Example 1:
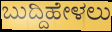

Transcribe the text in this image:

ಬುದ್ದಿಹೇಳಲು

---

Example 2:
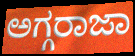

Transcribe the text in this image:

ಅಗ್ಗರಾಜಾ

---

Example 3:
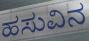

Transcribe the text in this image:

ಹಸುವಿನ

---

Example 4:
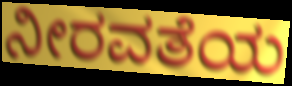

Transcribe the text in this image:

ನೀರವತೆಯ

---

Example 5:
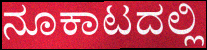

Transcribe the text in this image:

ನೂಕಾಟದಲ್ಲಿ